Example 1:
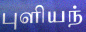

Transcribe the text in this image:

புளியந்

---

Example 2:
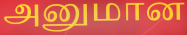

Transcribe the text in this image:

அனுமான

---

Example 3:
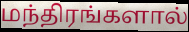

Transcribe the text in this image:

மந்திரங்களால்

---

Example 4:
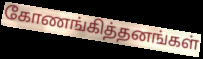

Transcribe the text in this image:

கோணங்கித்தனங்கள்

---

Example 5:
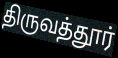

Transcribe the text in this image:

திருவத்தூர்